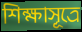
শিক্ষাসূত্রে